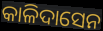
କାଳିଦାସେନ